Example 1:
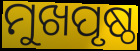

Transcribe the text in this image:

ମୁଖପୃଷ୍ଠ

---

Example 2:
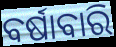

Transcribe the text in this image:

ବର୍ଷାବାରି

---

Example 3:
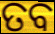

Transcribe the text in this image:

ତବ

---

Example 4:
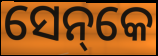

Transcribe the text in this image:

ସେନ୍‌କେ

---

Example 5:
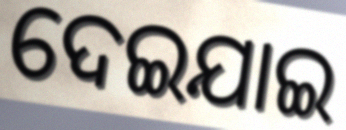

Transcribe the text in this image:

ଦେଇଯାଇ